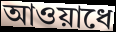
আওয়াধে